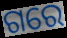
ଗରେ